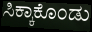
ಸಿಕ್ಕಾಕೊಂಡು